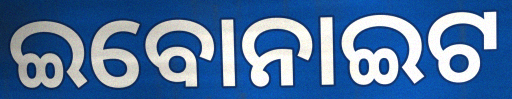
ଇବୋନାଇଟ